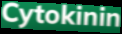
Cytokinin